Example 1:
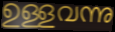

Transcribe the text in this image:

ഉള്ളവന്നു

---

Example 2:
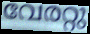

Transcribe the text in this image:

വേരറ്റു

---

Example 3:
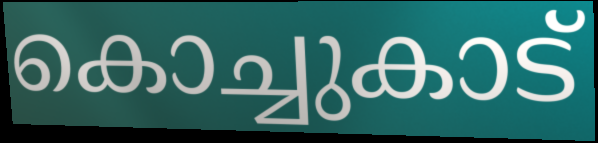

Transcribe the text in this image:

കൊച്ചുകാട്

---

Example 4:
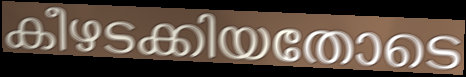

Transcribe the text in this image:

കീഴടക്കിയതോടെ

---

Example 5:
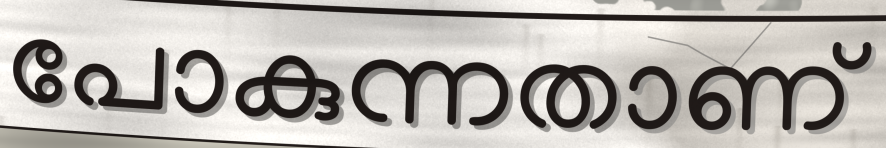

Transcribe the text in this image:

പോകുന്നതാണ്